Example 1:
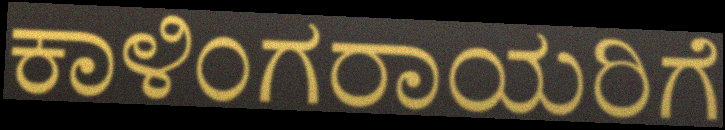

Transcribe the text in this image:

ಕಾಳಿಂಗರಾಯರಿಗೆ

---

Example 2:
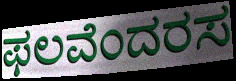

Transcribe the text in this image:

ಫಲವೆಂದರಸ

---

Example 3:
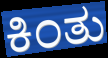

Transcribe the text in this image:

ಕಿಂತು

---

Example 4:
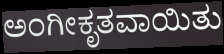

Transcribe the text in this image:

ಅಂಗೀಕೃತವಾಯಿತು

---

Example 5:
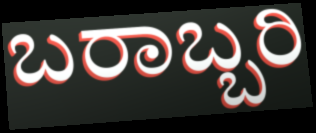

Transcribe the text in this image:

ಬರಾಬ್ಬರಿ